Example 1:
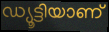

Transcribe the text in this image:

ഡ്യൂട്ടിയാണ്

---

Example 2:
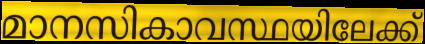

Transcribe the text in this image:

മാനസികാവസ്ഥയിലേക്ക്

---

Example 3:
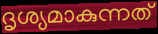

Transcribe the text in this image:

ദൃശ്യമാകുന്നത്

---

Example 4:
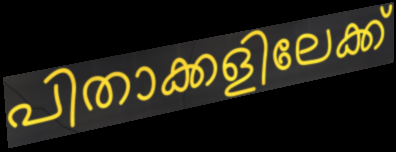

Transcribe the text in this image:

പിതാക്കളിലേക്ക്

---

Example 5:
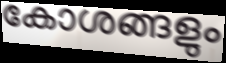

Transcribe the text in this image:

കോശങ്ങളും